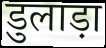
डुलाड़ा